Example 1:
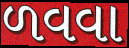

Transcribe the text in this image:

ળવવા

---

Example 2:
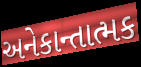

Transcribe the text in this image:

અનેકાન્તાત્મક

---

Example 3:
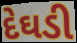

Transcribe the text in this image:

દેઘડી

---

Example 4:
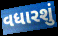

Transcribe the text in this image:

વધારશું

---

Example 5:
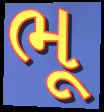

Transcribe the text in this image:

ભૂ